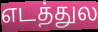
எடத்துல